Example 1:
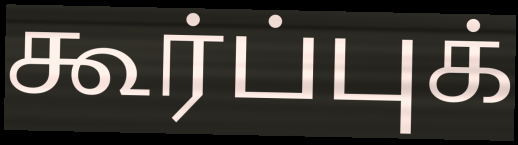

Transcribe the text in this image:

கூர்ப்புக்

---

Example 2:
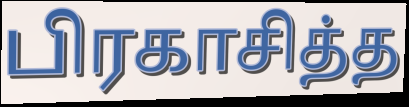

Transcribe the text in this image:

பிரகாசித்த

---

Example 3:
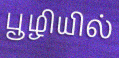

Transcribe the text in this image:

பூழியில்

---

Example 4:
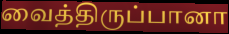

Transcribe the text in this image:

வைத்திருப்பானா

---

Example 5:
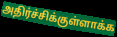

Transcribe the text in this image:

அதிர்ச்சிக்குள்ளாக்க